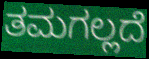
ತಮಗಲ್ಲದೆ